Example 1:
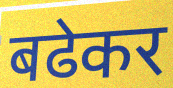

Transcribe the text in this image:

बढेकर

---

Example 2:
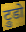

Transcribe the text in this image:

ट्रुडो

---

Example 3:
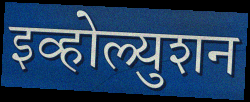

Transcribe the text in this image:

इव्होल्युशन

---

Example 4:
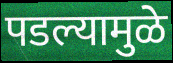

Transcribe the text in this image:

पडल्यामुळे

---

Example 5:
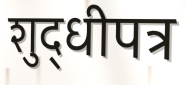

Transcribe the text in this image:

शुद्धीपत्र